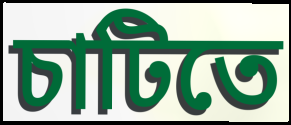
চাটিতে